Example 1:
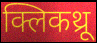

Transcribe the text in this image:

क्लिकथ्रू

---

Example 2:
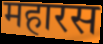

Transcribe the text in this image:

महारस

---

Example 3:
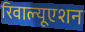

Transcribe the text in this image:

रिवाल्यूएशन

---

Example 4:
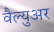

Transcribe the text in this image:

वैल्युअर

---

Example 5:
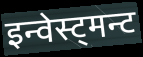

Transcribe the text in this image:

इन्वेस्ट्मन्ट